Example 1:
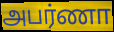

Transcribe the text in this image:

அபர்ணா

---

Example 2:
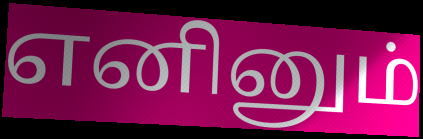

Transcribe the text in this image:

எனினும்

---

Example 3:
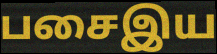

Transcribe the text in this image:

பசைஇய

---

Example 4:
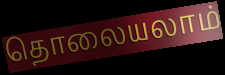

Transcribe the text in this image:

தொலையலாம்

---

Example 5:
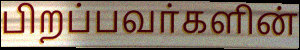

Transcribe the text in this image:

பிறப்பவர்களின்